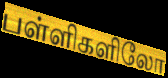
பள்ளிகளிலோ